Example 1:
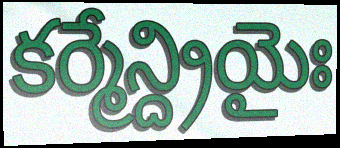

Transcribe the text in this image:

కర్మేన్ద్రియైః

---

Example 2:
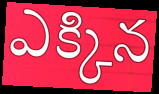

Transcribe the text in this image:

ఎక్కిన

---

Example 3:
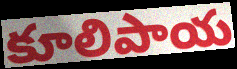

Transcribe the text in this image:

కూలిపాయ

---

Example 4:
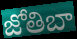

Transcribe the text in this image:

జోతిబా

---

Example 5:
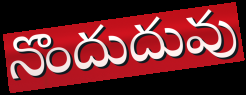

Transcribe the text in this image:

నొందుదువు